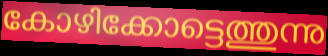
കോഴിക്കോട്ടെത്തുന്നു